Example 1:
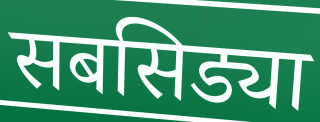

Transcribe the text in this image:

सबसिड्या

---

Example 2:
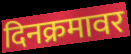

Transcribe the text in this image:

दिनक्रमावर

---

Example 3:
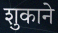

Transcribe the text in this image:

शुकाने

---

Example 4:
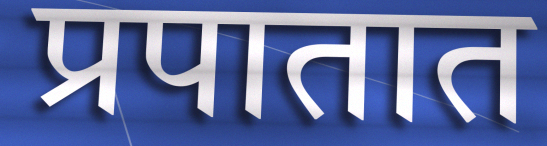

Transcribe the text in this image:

प्रपातात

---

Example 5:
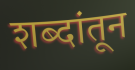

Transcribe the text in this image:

शब्दांतून